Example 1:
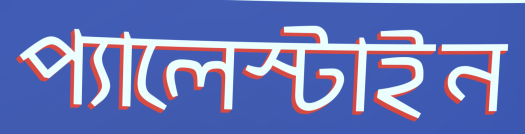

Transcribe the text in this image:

প্যালেস্টাইন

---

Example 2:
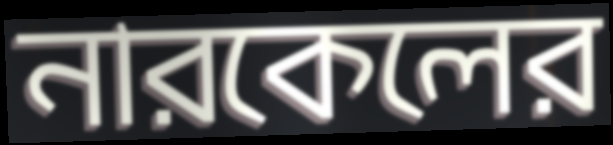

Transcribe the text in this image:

নারকেলের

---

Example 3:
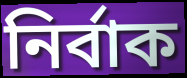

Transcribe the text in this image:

নির্বাক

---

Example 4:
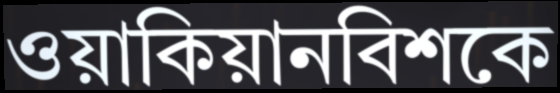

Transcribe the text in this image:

ওয়াকিয়ানবিশকে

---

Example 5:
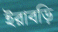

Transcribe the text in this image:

ইরাবড়ি